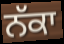
ਨੱਕਾ